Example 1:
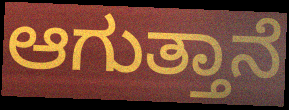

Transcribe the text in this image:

ಆಗುತ್ತಾನೆ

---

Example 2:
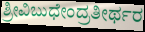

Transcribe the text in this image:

ಶ್ರೀವಿಬುಧೇಂದ್ರತೀರ್ಥರ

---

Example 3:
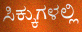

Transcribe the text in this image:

ಸಿಕ್ಕುಗಳಲ್ಲಿ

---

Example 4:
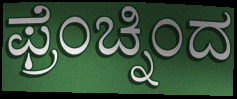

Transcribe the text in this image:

ಫ್ರೆಂಚ್ನಿಂದ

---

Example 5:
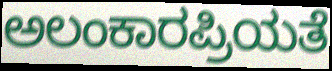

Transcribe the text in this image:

ಅಲಂಕಾರಪ್ರಿಯತೆ